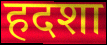
हदशा